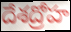
దేశద్రోహ